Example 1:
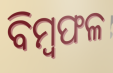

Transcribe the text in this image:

ବିମ୍ୱଫଳ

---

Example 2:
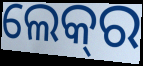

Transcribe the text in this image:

ଲେକ୍‍ର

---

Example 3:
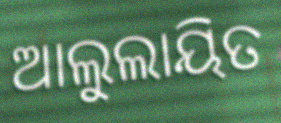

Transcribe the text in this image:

ଆଲୁଲାୟିତ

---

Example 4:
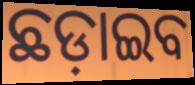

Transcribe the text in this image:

ଛଡ଼ାଇବ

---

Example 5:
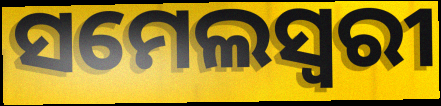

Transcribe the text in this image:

ସମେଲସ୍ୱରୀ